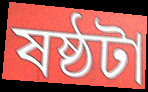
ষষ্ঠটা